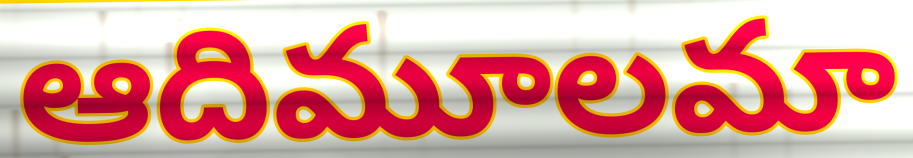
ఆదిమూలమా